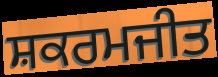
ਸ਼ਕਰਮਜੀਤ